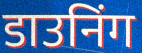
डाउनिंग